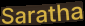
Saratha